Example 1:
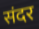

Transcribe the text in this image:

संदर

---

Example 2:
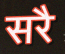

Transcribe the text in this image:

सरै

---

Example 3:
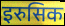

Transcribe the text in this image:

इरुसिक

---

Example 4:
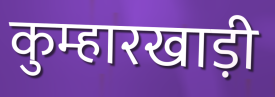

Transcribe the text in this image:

कुम्हारखाड़ी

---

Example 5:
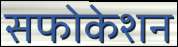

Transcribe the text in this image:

सफोकेशन